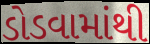
ડોડવામાંથી